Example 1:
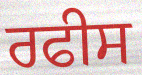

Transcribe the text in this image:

ਰਫੀਸ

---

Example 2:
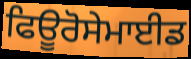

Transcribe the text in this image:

ਫਿਊਰੋਸੇਮਾਈਡ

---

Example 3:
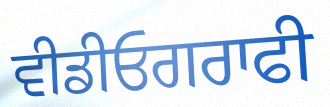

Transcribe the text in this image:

ਵੀਡੀਓਗਰਾਫੀ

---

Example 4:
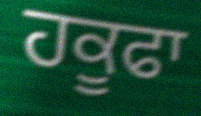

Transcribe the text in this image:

ਹਕੂਫਾ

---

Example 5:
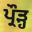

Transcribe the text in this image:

ਪ੍ਰੌੜ੍ਹ